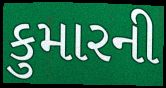
કુમારની